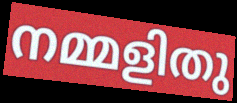
നമ്മളിതു